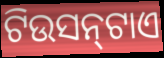
ଟିଉସନ୍‍ଟାଏ